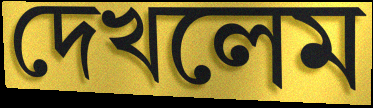
দেখলেম